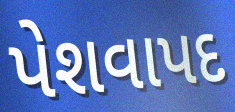
પેશવાપદ